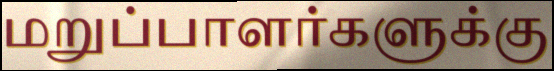
மறுப்பாளர்களுக்கு